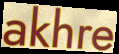
akhre